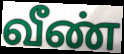
வீண்